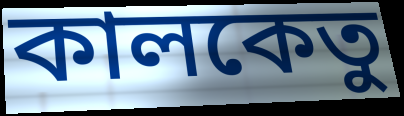
কালকেতু